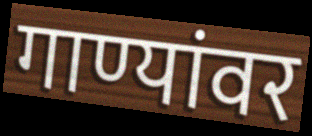
गाण्यांवर